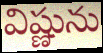
విష్ణును